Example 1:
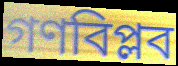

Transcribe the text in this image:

গণবিপ্লব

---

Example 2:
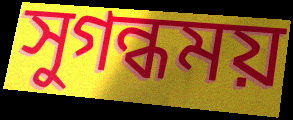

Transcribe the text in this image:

সুগন্ধময়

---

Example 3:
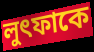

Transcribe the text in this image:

লুৎফাকে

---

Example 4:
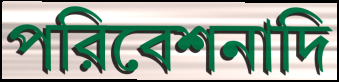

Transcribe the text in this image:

পরিবেশনাদি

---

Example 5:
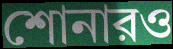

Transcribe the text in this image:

শোনারও